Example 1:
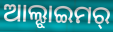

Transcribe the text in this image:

ଆଲ୍ଝାଇମର୍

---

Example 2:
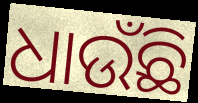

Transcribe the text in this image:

ଧାଉଁଛି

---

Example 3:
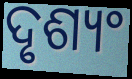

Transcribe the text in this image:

ଦୃଶ୍ୟଂ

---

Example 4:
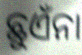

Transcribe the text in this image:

ଛୁଏଁନା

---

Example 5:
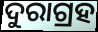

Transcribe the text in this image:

ଦୁରାଗ୍ରହ